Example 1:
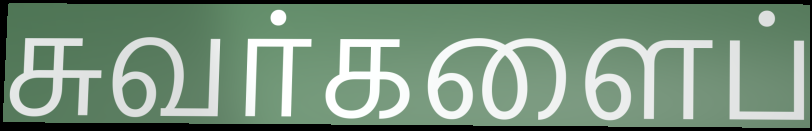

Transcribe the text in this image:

சுவர்களைப்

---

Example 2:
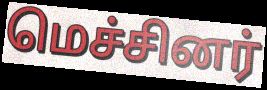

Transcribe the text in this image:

மெச்சினர்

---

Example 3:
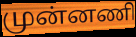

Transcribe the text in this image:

முன்னணி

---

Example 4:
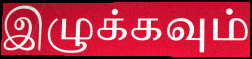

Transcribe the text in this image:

இழுக்கவும்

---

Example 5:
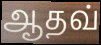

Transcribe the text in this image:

ஆதவ்